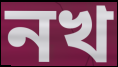
নখ